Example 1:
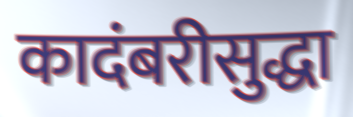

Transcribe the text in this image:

कादंबरीसुद्धा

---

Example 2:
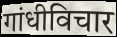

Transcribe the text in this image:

गांधीविचार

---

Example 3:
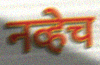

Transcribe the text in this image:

नव्हेच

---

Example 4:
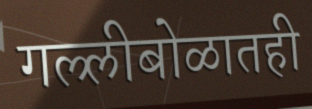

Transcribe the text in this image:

गल्लीबोळातही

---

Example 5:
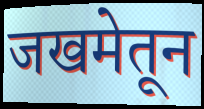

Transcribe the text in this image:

जखमेतून